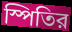
স্পিতির